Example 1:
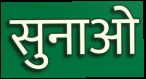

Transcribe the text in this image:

सुनाओ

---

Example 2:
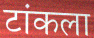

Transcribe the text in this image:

टांकला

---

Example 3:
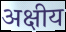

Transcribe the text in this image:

अक्षीय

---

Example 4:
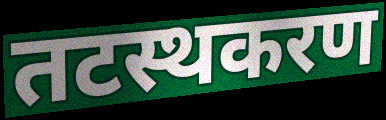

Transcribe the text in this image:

तटस्थकरण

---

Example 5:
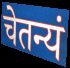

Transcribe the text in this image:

चेतन्यं